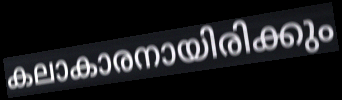
കലാകാരനായിരിക്കും